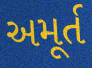
અમૂર્ત